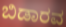
ಬಿಡಾರವ